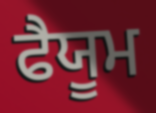
ਫੈਯੂਮ